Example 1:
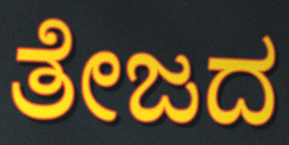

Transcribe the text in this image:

ತೇಜದ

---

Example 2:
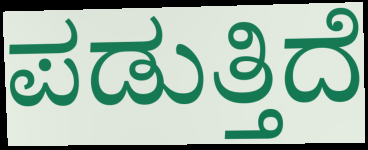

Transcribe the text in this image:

ಪಡುತ್ತಿದೆ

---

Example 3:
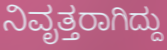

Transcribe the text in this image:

ನಿವೃತ್ತರಾಗಿದ್ದು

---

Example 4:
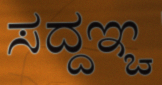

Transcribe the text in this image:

ಸದ್ದಞ್ಚ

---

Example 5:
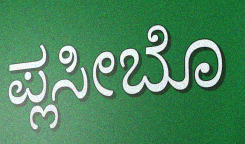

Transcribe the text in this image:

ಪ್ಲಸೀಬೊ